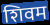
शिवम